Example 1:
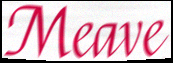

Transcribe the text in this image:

Meave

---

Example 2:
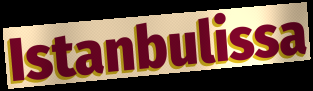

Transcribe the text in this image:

Istanbulissa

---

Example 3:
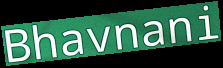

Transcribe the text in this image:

Bhavnani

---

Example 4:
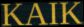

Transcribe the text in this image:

KAIK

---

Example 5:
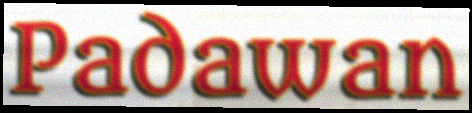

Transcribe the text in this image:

Padawan